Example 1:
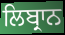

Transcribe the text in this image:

ਲਿਬ੍ਰਾਨ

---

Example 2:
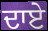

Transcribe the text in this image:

ਦਾਏ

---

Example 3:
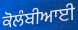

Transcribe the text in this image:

ਕੋਲੰਬੀਆਈ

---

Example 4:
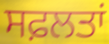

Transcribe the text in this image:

ਸਫ਼ਲਤਾਂ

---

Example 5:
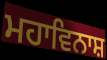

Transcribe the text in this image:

ਮਹਾਵਿਨਾਸ਼